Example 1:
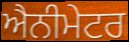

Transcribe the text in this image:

ਐਨੀਮੇਟਰ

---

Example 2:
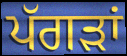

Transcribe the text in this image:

ਪੱਗੜਾਂ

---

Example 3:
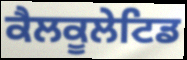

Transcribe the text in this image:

ਕੈਲਕੂਲੇਟਿਡ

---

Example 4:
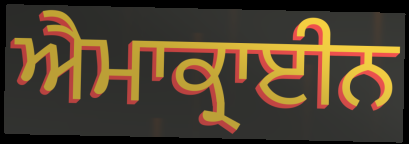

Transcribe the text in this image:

ਐਮਾਕ੍ਰਾਈਨ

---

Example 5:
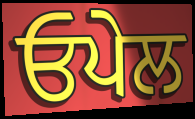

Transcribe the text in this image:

ਓਪੇਲ